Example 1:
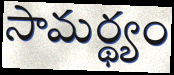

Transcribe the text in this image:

సామర్థ్యం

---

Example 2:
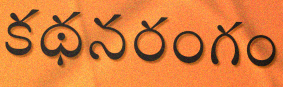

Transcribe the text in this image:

కథనరంగం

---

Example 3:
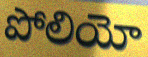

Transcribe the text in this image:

పోలియో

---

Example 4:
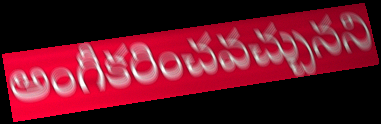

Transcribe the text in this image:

అంగీకరించవచ్చునని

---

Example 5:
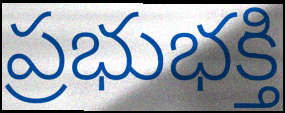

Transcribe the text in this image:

ప్రభుభక్తి